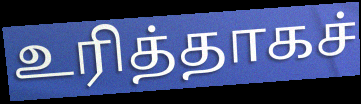
உரித்தாகச்